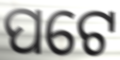
ପଟେ